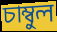
চাম্বুল